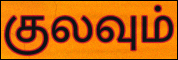
குலவும்